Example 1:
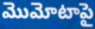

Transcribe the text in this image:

మొమోటాపై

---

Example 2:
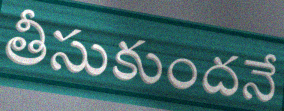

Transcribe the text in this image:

తీసుకుందనే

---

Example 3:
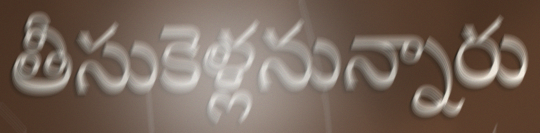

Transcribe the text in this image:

తీసుకెళ్లనున్నారు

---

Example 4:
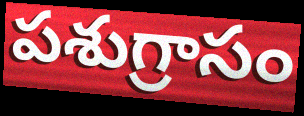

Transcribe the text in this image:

పశుగ్రాసం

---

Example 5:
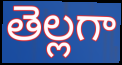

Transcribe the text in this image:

తెల్లగా